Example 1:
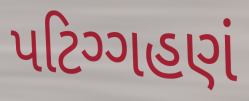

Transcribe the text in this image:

પટિગ્ગહણં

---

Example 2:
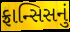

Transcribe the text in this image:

ફ્રાન્સિસનું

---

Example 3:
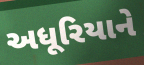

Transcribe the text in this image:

અધૂરિયાને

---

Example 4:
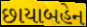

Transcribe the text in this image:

છાયાબહેન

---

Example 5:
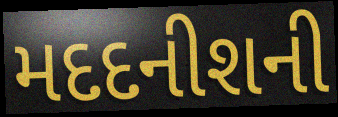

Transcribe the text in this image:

મદદનીશની